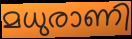
മധുരാണി